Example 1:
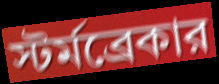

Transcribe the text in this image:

স্টর্মব্রেকার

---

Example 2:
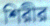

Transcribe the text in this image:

শিরীর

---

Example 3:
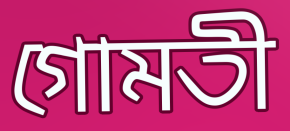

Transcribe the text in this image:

গোমতী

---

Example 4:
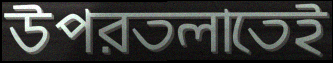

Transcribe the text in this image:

উপরতলাতেই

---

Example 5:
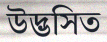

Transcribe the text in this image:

উদ্ভসিত